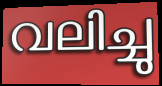
വലിച്ചു